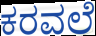
ಕರವಲೆ